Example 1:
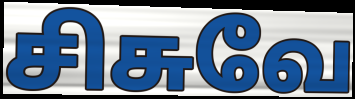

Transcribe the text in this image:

சிசுவே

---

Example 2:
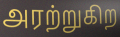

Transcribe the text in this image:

அரற்றுகிற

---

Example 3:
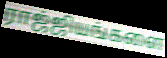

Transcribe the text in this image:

ராஜ்ஜியங்களை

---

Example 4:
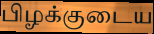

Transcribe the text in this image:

பிழக்குடைய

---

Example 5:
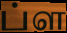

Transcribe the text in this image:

ப்ள